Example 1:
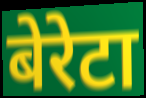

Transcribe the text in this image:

बेरेटा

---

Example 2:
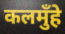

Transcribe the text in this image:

कलमुँहे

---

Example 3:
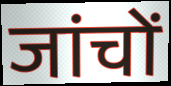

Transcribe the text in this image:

जांचों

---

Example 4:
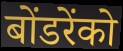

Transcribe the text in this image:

बोंडरेंको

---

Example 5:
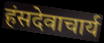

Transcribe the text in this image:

हंसदेवाचार्य